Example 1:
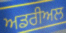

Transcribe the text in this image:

ਅਡਰੀਅਲ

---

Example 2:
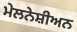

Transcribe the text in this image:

ਮੇਲਨੇਸ਼ੀਅਨ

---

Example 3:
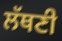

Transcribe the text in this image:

ਲੱਥਣੀ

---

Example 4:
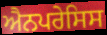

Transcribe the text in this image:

ਐਨਪਰੇਸਿਸ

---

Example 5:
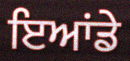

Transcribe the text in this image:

ਇਆਂਡੇ